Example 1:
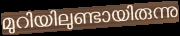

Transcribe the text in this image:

മുറിയിലുണ്ടായിരുന്നു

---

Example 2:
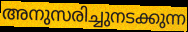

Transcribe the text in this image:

അനുസരിച്ചുനടക്കുന്ന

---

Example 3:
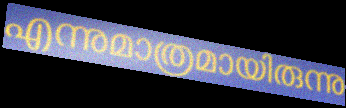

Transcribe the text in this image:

എന്നുമാത്രമായിരുന്നു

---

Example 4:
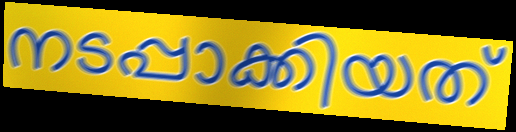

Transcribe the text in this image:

നടപ്പാക്കിയത്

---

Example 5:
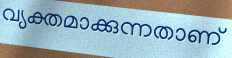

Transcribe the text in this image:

വ്യക്തമാക്കുന്നതാണ്